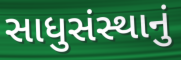
સાધુસંસ્થાનું